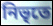
নিভৃতে